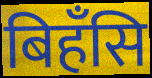
बिहँसि